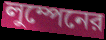
লুম্পেনের